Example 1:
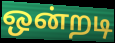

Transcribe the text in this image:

ஒன்றடி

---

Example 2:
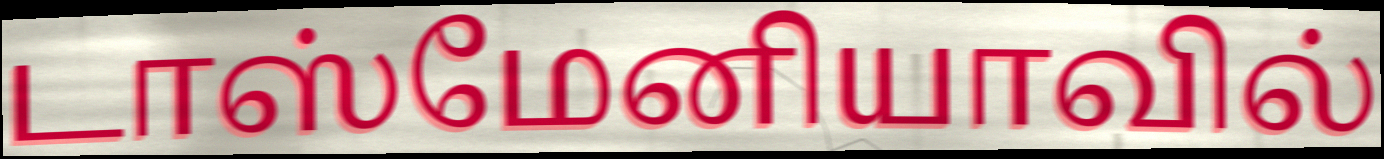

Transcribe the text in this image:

டாஸ்மேனியாவில்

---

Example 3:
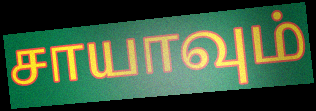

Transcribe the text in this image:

சாயாவும்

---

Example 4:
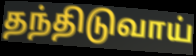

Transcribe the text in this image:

தந்திடுவாய்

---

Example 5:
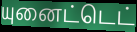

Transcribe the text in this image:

யுனைட்டெட்